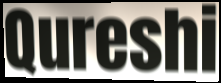
Qureshi